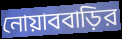
নোয়াববাড়ির